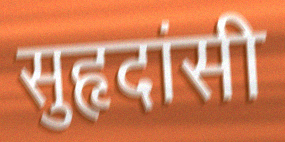
सुहृदांसी